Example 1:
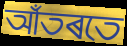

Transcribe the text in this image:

আঁতৰতে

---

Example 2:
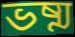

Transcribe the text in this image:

ভষ্ম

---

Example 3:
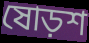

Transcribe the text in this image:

ষোড়শ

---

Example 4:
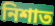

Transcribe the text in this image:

নিশাত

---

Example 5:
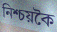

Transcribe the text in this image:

নিশ্চয়কৈ